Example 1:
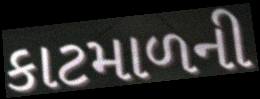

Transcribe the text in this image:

કાટમાળની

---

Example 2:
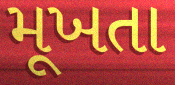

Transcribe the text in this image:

મૂખતા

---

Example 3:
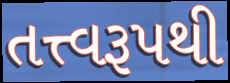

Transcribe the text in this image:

તત્ત્વરૂપથી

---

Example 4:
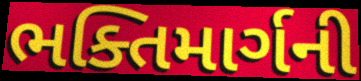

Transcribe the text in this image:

ભક્તિમાર્ગની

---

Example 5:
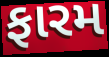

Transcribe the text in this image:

ફારમ